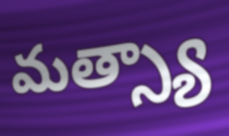
మత్స్యా